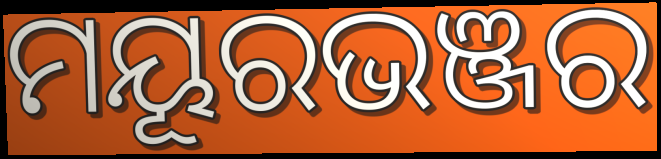
ମୟୂରଭଞ୍ଜର